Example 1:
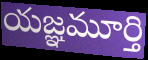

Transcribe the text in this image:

యజ్ఞమూర్తి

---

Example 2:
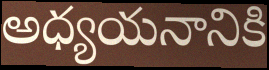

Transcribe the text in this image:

అధ్యయనానికి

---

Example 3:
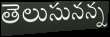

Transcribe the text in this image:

తెలుసునన్న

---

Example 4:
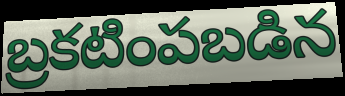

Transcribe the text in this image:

బ్రకటింపబడిన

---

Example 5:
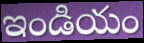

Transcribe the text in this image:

ఇండియం